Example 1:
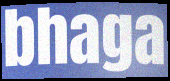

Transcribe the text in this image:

bhaga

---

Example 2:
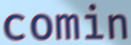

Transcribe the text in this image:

comin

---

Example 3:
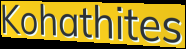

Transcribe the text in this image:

Kohathites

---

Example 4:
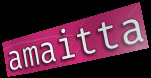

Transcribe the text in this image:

amaitta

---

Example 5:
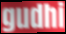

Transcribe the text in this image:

gudhi